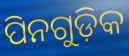
ପିନଗୁଡ଼ିକ